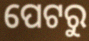
ପେଟରୁ